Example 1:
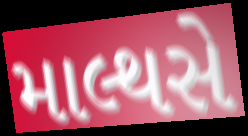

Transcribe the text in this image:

માલ્થસે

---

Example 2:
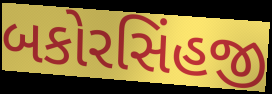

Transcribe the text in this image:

બકોરસિંહજી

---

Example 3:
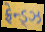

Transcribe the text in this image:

ફ્રેન્ડ્ઝ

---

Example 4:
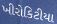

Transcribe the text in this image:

ખીરોકિટીયા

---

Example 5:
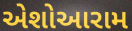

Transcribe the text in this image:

એશોઆરામ